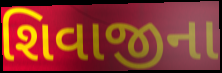
શિવાજીના